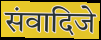
संवादिजे